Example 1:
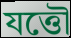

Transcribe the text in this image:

যত্তৌ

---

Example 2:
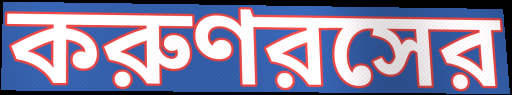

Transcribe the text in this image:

করুণরসের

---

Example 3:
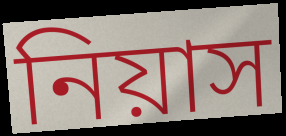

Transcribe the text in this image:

নিয়াস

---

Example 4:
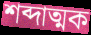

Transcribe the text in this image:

শব্দাত্মক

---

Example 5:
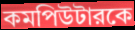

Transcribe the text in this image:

কমপিউটারকে